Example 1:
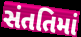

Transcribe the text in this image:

સંતતિમાં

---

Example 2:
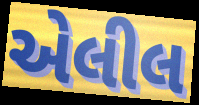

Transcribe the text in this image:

એલીલ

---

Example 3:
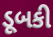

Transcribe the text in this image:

ડૂબકી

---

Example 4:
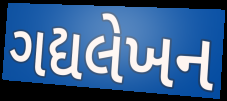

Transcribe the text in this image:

ગદ્યલેખન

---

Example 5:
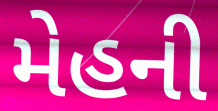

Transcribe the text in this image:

મેહની